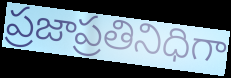
ప్రజాప్రతినిధిగా